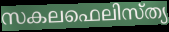
സകലഫെലിസ്ത്യ